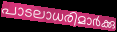
പാടലാധരിമാർക്കു